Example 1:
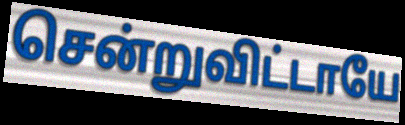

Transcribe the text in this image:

சென்றுவிட்டாயே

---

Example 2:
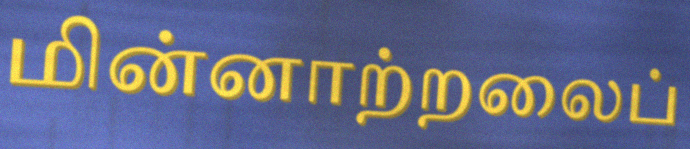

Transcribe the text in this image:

மின்னாற்றலைப்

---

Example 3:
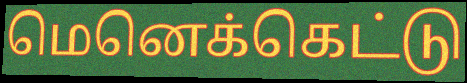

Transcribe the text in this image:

மெனெக்கெட்டு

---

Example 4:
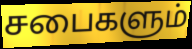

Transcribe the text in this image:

சபைகளும்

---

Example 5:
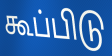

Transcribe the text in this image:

கூப்பிடு